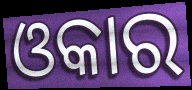
ଓକାର